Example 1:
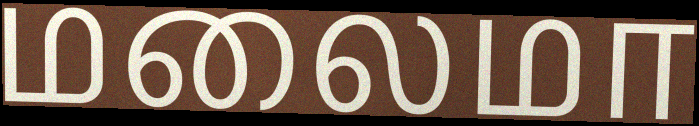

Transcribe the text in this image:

மலைமா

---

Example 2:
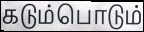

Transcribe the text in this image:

கடும்பொடும்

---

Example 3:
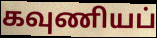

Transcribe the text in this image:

கவுணியப்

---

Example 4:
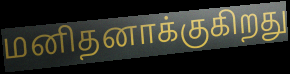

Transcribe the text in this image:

மனிதனாக்குகிறது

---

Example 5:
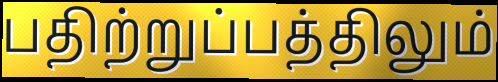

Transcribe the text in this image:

பதிற்றுப்பத்திலும்